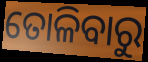
ତୋଳିବାରୁ